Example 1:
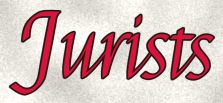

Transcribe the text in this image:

Jurists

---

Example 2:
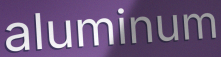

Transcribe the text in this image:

aluminum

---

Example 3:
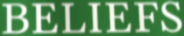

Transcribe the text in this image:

BELIEFS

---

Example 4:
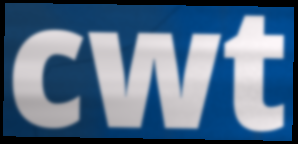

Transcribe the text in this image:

cwt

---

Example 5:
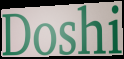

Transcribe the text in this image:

Doshi